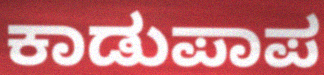
ಕಾಡುಪಾಪ